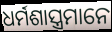
ଧର୍ମଶାସ୍ତ୍ରମାନେ